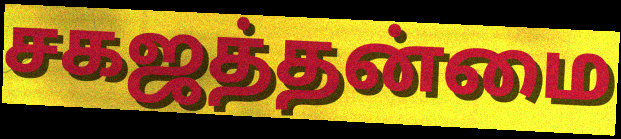
சகஜத்தன்மை